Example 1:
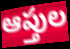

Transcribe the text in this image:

ఆప్తుల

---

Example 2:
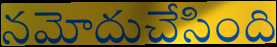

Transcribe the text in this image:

నమోదుచేసింది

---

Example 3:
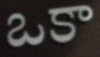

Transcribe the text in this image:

ఒకా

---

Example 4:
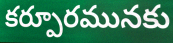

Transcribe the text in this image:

కర్పూరమునకు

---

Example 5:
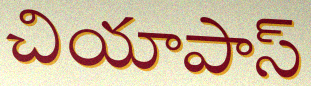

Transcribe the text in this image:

చియాపాస్